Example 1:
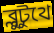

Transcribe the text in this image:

ব্লুটুথে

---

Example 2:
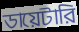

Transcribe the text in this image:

ডায়েটারি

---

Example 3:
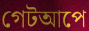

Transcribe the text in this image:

গেটআপে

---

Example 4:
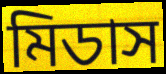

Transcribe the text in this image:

মিডাস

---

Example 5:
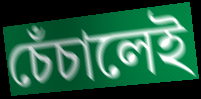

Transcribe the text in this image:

চেঁচালেই